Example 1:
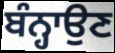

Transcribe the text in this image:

ਬੰਨ੍ਹਾਉਣ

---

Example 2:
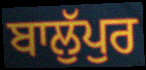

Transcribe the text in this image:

ਬਾਲੁੱਪੁਰ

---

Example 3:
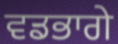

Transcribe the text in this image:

ਵਡਭਾਗੇ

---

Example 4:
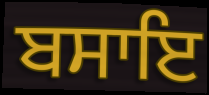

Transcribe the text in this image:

ਬਸਾਇ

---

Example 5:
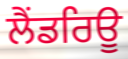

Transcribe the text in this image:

ਲੈਂਡਰਿਊ